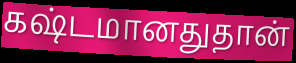
கஷ்டமானதுதான்